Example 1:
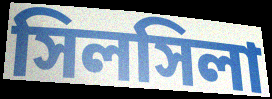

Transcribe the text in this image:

সিলসিলা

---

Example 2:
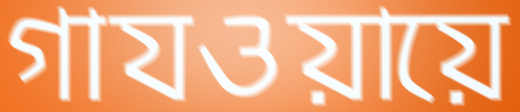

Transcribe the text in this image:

গাযওয়ায়ে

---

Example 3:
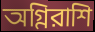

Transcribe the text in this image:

অগ্নিরাশি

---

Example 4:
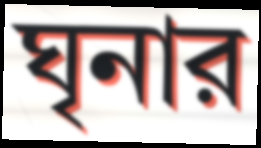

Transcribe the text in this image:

ঘৃনার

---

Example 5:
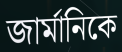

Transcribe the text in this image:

জার্মানিকে